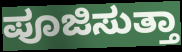
ಪೂಜಿಸುತ್ತಾ